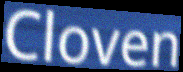
Cloven